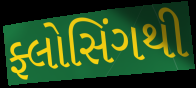
ફ્લોસિંગથી